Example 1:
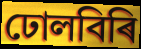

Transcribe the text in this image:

ঢোলবিৰি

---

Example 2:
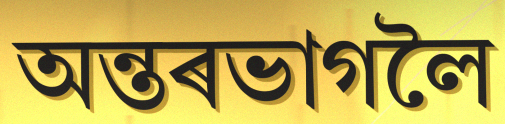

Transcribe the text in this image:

অন্তৰভাগলৈ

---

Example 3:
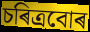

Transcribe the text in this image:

চৰিত্ৰবোৰ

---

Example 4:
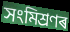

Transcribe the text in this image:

সংমিশ্ৰণৰ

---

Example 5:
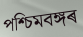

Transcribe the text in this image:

পশ্চিমবঙ্গৰ